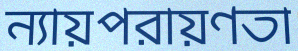
ন্যায়পরায়ণতা